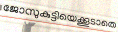
ജോസുകുട്ടിയെക്കൂടാതെ